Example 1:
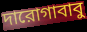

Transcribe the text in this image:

দারোগাবাবু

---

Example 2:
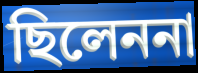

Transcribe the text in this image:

ছিলেননা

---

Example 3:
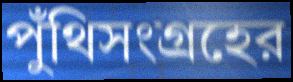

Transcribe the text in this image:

পুঁথিসংগ্রহের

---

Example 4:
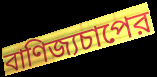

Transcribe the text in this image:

বাণিজ্যচাপের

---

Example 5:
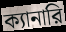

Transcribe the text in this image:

ক্যানারি